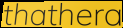
thathera